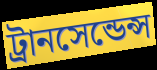
ট্রানসেন্ডেন্স